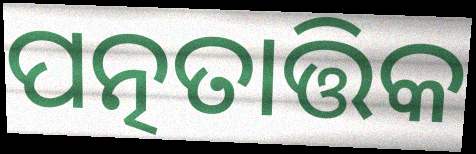
ପତ୍ନତାତ୍ତିକ